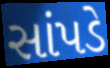
સાંપડે